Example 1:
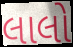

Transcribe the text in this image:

લાલો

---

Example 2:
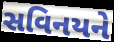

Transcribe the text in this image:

સવિનયને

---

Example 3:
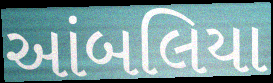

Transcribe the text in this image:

આંબલિયા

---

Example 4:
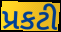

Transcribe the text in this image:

પ્રકટી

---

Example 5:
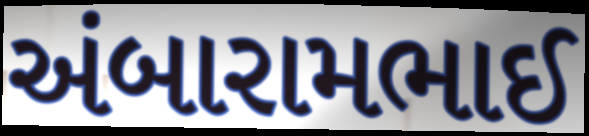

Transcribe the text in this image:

અંબારામભાઈ